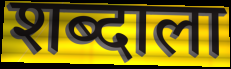
शब्दाला